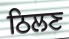
ਠਿਲਣ